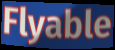
Flyable